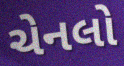
ચેનલો